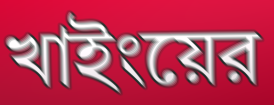
খাইংয়ের